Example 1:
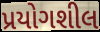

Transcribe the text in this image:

પ્રયોગશીલ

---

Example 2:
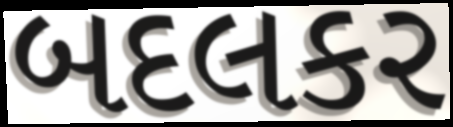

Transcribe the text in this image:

બદલકર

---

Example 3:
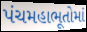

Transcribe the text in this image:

પંચમહાભૂતોમાં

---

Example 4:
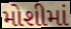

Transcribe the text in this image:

મોશીમાં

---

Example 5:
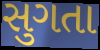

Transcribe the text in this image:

સુગતા